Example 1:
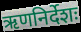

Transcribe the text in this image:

ऋणनिर्देशः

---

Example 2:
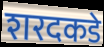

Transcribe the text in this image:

शरदकडे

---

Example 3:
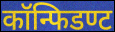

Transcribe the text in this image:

कॉन्फिडण्ट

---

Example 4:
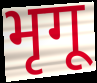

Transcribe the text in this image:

भृगू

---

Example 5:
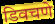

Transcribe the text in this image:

डिवचणे